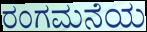
ರಂಗಮನೆಯ